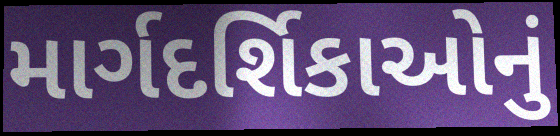
માર્ગદર્શિકાઓનું